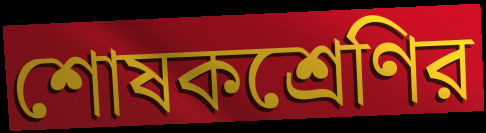
শোষকশ্রেণির